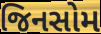
જિનસોમ